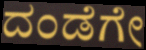
ದಂಡೆಗೇ